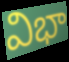
విభా